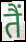
तैं